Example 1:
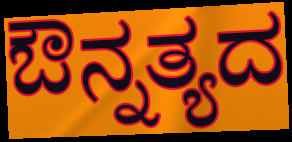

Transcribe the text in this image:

ಔನ್ನತ್ಯದ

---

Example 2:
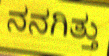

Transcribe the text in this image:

ನನಗಿತ್ತು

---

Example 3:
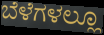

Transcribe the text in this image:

ಬೆಳೆಗಳಲ್ಲೂ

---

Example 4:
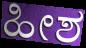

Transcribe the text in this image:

ಹೀಶ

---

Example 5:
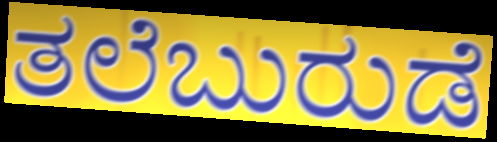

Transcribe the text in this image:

ತಲೆಬುರುಡೆ